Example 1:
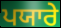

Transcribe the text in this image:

ਪਯਾਰੇ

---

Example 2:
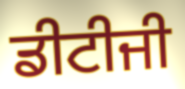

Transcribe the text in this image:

ਡੀਟੀਜੀ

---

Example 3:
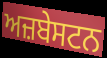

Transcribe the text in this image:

ਅਜ਼ਬੇਸਟਨ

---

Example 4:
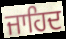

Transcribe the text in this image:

ਜਾਹਿਦ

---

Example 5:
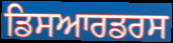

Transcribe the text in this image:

ਡਿਸਆਰਡਰਸ